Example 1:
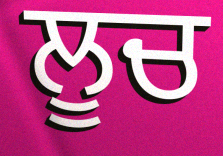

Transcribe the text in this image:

ਲੂਚ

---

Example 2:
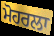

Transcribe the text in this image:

ਮੋਹਰਲਾ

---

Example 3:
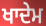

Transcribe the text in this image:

ਖਾਦੇਮ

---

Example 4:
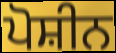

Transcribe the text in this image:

ਪੋਸ਼ੀਨ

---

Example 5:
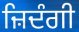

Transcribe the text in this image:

ਜ਼ਿਦੰਗੀ